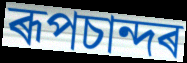
ৰূপচান্দৰ